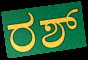
ರಶ್